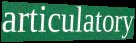
articulatory